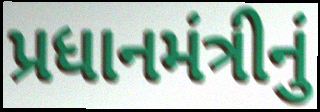
પ્રધાનમંત્રીનું